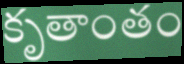
కృతాంతం